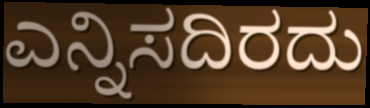
ಎನ್ನಿಸದಿರದು